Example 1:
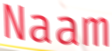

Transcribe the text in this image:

Naam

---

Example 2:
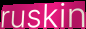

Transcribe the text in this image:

ruskin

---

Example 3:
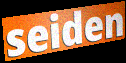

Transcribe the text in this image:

seiden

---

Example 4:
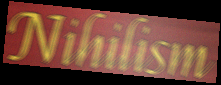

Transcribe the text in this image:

Nihilism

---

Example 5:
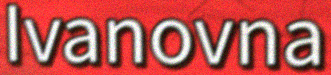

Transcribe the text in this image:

Ivanovna